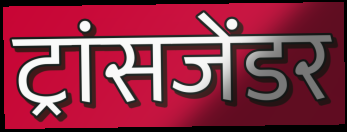
ट्रांसजेंडर